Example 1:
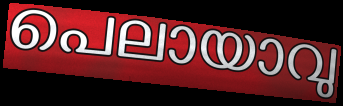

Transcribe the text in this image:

പെലായാവു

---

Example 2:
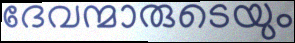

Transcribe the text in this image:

ദേവന്മാരുടെയും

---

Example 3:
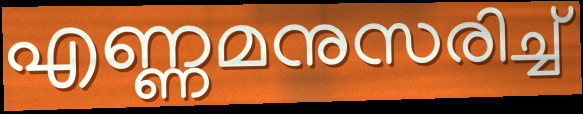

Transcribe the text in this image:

എണ്ണമനുസരിച്ച്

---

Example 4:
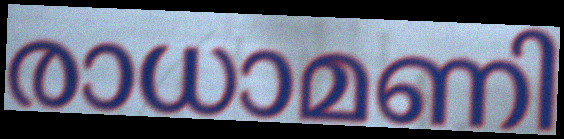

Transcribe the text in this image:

രാധാമണി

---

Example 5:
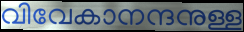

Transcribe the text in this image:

വിവേകാനന്ദനുള്ള